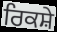
ਰਿਕਸ਼ੇ